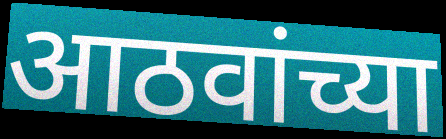
आठवांच्या